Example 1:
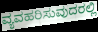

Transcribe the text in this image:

ವ್ಯವಹರಿಸುವುದರಲ್ಲಿ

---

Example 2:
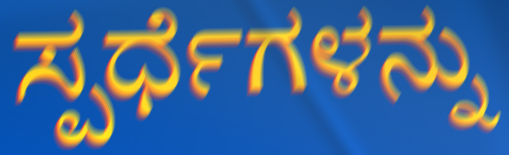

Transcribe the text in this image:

ಸ್ಪರ್ಧೆಗಳನ್ನು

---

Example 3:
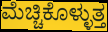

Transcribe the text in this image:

ಮೆಚ್ಚಿಕೊಳ್ಳುತ್ತ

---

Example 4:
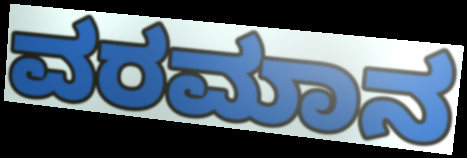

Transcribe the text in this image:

ವರಮಾನ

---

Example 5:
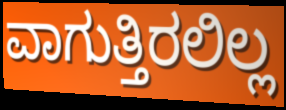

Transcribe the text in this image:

ವಾಗುತ್ತಿರಲಿಲ್ಲ